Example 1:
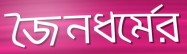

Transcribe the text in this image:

জৈনধর্মের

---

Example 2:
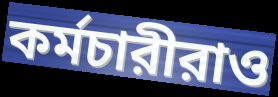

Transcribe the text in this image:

কর্মচারীরাও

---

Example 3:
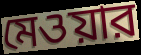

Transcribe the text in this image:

মেওয়ার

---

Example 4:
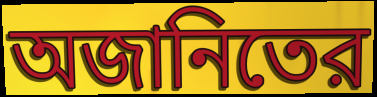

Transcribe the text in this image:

অজানিতের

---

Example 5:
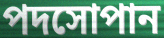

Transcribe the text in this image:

পদসোপান